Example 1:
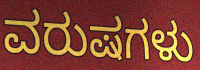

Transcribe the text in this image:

ವರುಷಗಳು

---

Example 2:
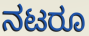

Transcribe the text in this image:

ನಟರೂ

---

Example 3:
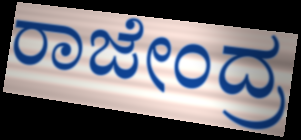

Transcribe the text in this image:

ರಾಜೇಂದ್ರ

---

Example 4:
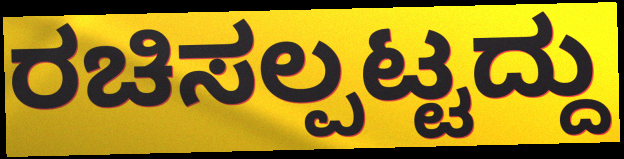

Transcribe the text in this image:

ರಚಿಸಲ್ಪಟ್ಟದ್ದು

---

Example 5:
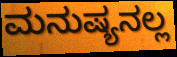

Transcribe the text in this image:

ಮನುಷ್ಯನಲ್ಲ